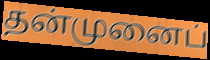
தன்முனைப்